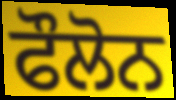
ਫੌਲੋਨ